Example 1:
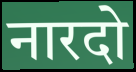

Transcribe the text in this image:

नारदो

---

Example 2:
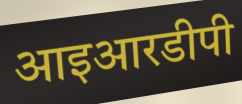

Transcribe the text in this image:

आइआरडीपी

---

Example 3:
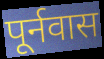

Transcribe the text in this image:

पूर्नवास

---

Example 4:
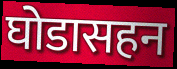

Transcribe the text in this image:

घोडासहन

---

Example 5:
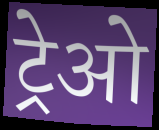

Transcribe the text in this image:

ट्रेओ